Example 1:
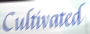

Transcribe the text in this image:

Cultivated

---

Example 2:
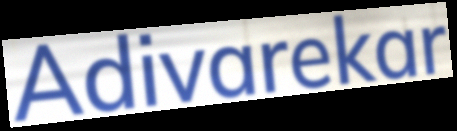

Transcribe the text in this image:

Adivarekar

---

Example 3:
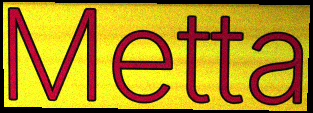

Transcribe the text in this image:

Metta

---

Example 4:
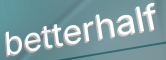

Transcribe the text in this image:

betterhalf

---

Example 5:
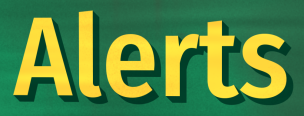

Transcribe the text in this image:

Alerts